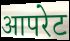
आपरेट